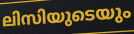
ലിസിയുടെയും